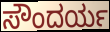
ಸೌಂದರ್ಯ